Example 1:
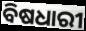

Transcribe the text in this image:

ବିଷଧାରୀ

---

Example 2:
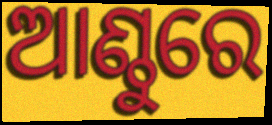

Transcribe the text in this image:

ଆଣ୍ଠୁରେ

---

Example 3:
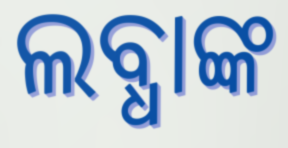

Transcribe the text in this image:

ଲବ୍ଧାଙ୍କ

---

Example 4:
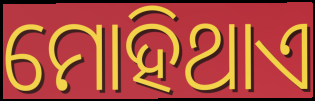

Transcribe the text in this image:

ମୋହିଥାଏ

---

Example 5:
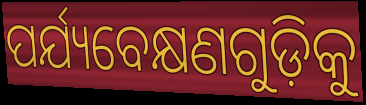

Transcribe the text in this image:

ପର୍ଯ୍ୟବେକ୍ଷଣଗୁଡ଼ିକୁ